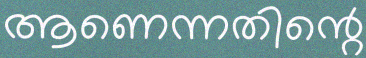
ആണെന്നതിന്റെ